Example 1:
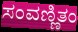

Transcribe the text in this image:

ಸಂವಣ್ಣಿತಂ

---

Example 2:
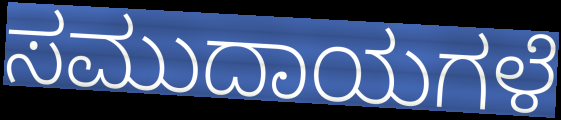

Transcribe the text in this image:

ಸಮುದಾಯಗಳೆ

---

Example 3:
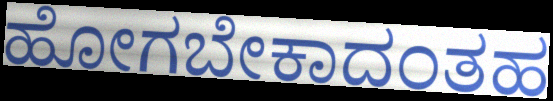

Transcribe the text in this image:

ಹೋಗಬೇಕಾದಂತಹ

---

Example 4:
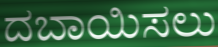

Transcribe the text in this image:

ದಬಾಯಿಸಲು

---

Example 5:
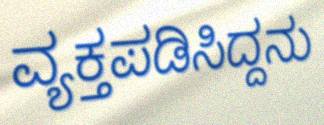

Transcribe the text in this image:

ವ್ಯಕ್ತಪಡಿಸಿದ್ದನು